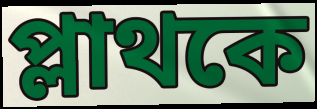
প্লাথকে